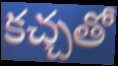
కచ్చతో